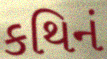
કથિનં